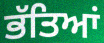
ਭੱਤਿਆਂ